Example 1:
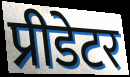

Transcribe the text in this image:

प्रीडेटर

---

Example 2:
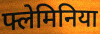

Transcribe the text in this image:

फ्लेमिनिया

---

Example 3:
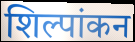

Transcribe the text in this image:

शिल्पांकन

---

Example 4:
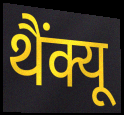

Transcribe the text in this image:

थैंक्यू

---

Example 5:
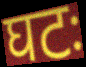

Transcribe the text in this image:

घटः